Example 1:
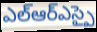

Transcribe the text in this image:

ఎల్ఆర్ఎస్పై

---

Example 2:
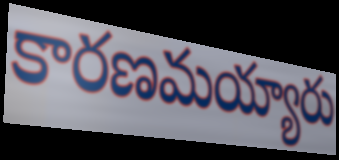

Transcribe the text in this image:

కారణమయ్యారు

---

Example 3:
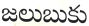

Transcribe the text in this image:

జలుబుకు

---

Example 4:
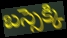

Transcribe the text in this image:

బస్సెక్కి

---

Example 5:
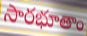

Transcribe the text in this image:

సారభూతాం